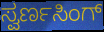
ಸ್ವರ್ಣಸಿಂಗ್